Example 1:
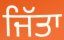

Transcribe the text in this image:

ਜਿੱਤਾ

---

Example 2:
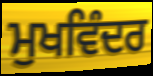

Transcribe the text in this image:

ਮੁਖਵਿੰਦਰ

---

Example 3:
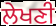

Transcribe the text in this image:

ਲੇਖਣੀ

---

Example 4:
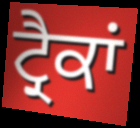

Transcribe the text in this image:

ਟ੍ਰੈਕਾਂ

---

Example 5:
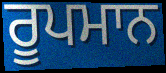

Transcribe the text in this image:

ਰੂਪਮਾਨ